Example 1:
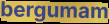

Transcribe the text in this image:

bergumam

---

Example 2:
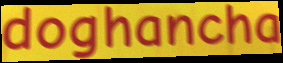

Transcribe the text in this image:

doghancha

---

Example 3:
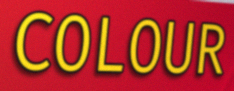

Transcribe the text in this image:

COLOUR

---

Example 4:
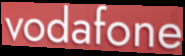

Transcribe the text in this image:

vodafone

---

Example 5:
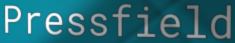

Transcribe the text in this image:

Pressfield